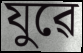
যুৱে